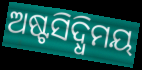
ଅଷ୍ଟସିଦ୍ଧିମୟ